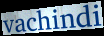
vachindi